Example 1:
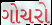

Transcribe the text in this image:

ગોચરો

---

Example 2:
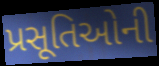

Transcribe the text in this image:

પ્રસૂતિઓની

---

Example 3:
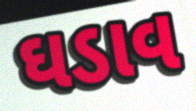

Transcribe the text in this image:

ઘડાવ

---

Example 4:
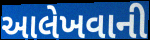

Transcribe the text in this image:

આલેખવાની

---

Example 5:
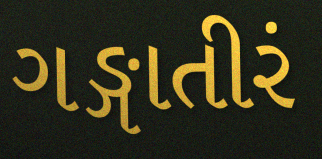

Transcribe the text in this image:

ગઙ્ગાતીરં